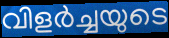
വിളർച്ചയുടെ